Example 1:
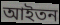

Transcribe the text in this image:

আইতন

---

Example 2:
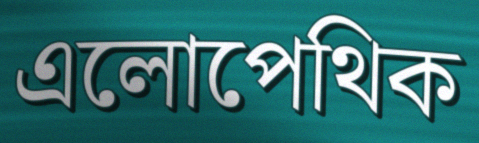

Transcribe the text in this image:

এলোপেথিক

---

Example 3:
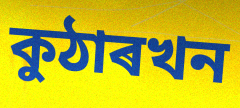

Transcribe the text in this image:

কুঠাৰখন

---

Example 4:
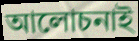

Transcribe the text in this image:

আলোচনাই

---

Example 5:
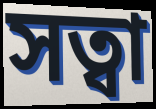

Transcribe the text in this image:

সত্বা